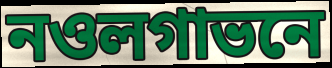
নওলগাভনে